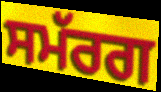
ਸਮੱਰਗ